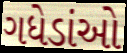
ગધેડાંઓ